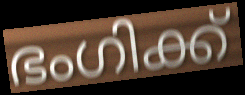
ഭംഗിക്ക്